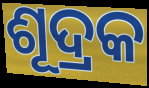
ଶୂଦ୍ରକ